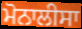
ਮੋਨਾਲੀਸਾ